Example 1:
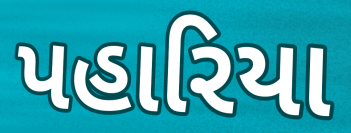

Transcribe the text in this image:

પહારિયા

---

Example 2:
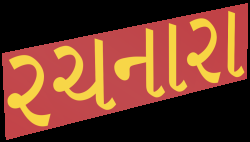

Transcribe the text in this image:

રચનારા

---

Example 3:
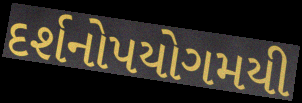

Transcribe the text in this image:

દર્શનોપયોગમયી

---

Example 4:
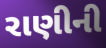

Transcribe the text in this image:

રાણીની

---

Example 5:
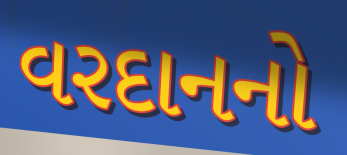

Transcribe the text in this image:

વરદાનનો